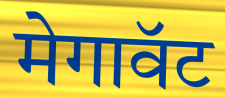
मेगावॅट